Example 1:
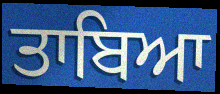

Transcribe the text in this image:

ਤਾਬਿਆ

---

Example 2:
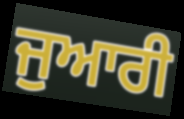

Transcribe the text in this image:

ਜੁਆਰੀ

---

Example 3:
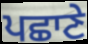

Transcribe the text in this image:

ਪਛਾਣੇ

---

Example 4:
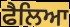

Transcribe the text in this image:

ਫੈਲਿਆ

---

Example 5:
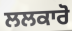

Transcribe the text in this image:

ਲਲਕਾਰੋ